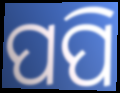
ପପି